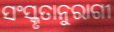
ସଂସ୍କୃତାନୁରାଗୀ